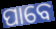
ପାବେ